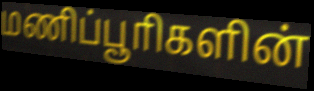
மணிப்பூரிகளின்